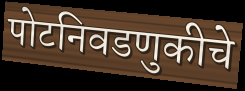
पोटनिवडणुकीचे